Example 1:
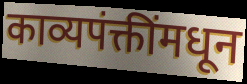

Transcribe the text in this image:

काव्यपंक्तींमधून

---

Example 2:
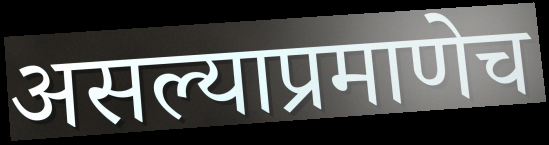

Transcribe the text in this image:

असल्याप्रमाणेच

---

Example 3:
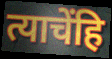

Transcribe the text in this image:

त्याचेंहि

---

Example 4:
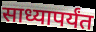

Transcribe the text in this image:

साध्यापर्यंत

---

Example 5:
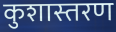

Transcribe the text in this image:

कुशास्तरण